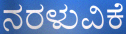
ನರಳುವಿಕೆ